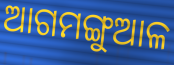
ଆଗମଙ୍ଗୁଆଳ